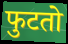
फुटतो